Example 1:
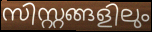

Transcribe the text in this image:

സിസ്റ്റങ്ങളിലും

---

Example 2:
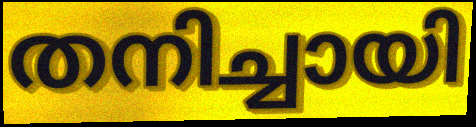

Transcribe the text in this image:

തനിച്ചായി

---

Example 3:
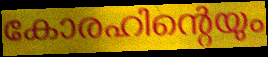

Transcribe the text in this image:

കോരഹിന്റെയും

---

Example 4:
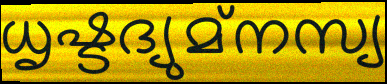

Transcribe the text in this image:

ധൃഷ്ടദ്യുമ്നസ്യ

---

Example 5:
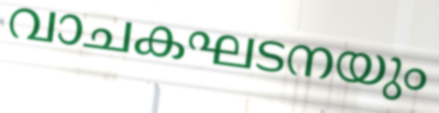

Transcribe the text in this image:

വാചകഘടനയും